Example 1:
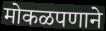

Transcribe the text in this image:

मोकळपणाने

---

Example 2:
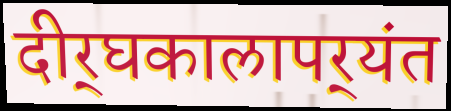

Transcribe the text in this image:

दीर्घकालापर्यंत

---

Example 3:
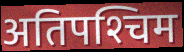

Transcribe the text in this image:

अतिपश्चिम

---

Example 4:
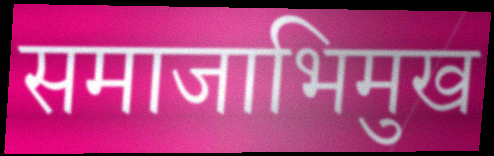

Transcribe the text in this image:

समाजाभिमुख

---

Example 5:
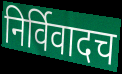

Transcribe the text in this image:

निर्विवादच